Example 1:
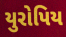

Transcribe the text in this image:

યુરોપિય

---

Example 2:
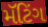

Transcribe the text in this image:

મૅટિંગ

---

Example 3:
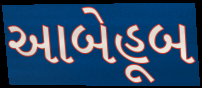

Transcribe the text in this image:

આબેહૂબ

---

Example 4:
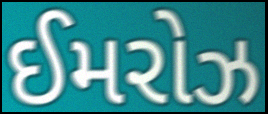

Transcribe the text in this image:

ઈમરોઝ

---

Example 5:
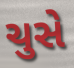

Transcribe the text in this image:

ચુસે